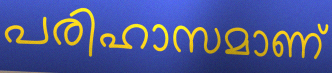
പരിഹാസമാണ്